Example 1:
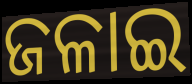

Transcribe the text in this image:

ଜଳାଇ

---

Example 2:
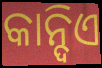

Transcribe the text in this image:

କାନ୍ଦିଏ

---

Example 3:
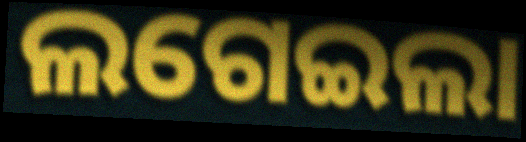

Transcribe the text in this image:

ଲଗେଇଲା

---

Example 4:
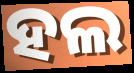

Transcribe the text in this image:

ହଲ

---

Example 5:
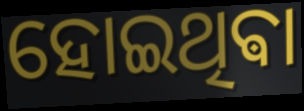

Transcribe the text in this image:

ହୋଇଥିଵା